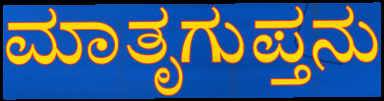
ಮಾತೃಗುಪ್ತನು